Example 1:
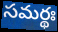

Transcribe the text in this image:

సమర్థః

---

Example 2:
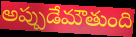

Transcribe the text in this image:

అప్పుడేమౌతుంది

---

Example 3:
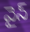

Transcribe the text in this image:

వైన్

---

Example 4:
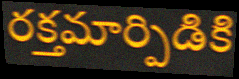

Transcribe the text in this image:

రక్తమార్పిడికి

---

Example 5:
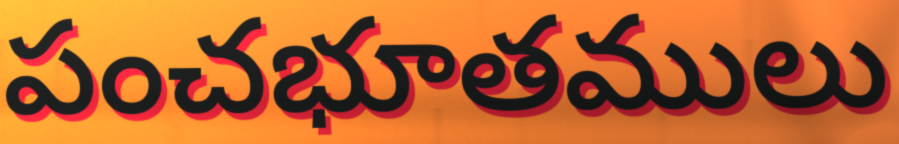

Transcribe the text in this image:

పంచభూతములు